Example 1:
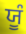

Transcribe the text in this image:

ਯੂੰ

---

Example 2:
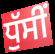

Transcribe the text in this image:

ਧੁੱਸੀਂ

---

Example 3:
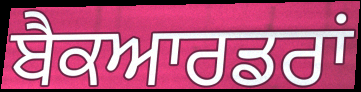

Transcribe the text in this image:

ਬੈਕਆਰਡਰਾਂ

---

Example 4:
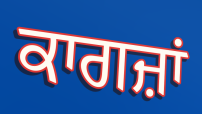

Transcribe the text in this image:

ਕਾਗਜ਼ਾਂ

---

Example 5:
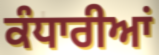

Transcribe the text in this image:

ਕੰਧਾਰੀਆਂ